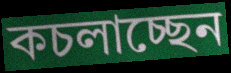
কচলাচ্ছেন